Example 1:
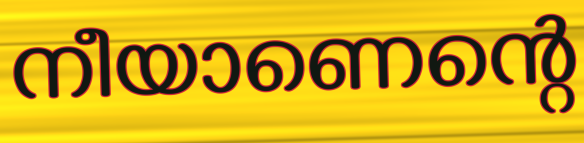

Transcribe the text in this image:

നീയാണെന്റെ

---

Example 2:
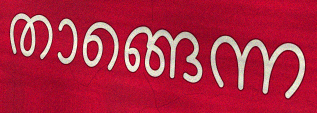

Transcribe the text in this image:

താങ്ങെന്ന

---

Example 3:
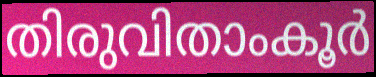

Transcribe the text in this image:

തിരുവിതാംകൂർ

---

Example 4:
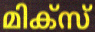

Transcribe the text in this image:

മിക്സ്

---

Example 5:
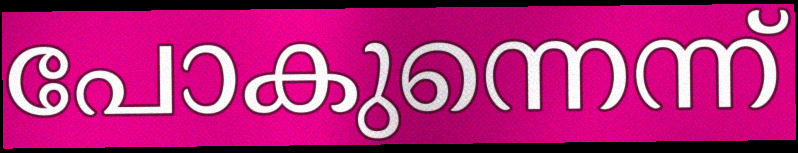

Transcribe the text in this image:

പോകുന്നെന്ന്